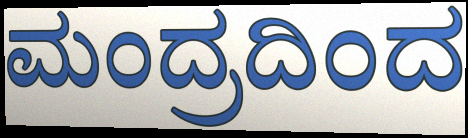
ಮಂದ್ರದಿಂದ